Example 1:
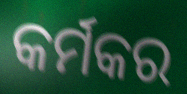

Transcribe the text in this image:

କର୍ମକର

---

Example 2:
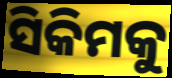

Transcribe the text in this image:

ସିକିମକୁ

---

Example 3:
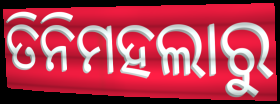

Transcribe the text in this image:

ତିନିମହଲାରୁ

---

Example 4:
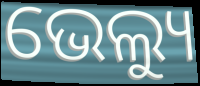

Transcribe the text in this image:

ଭେଲ୍ୟୁ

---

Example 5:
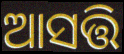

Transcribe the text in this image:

ଆସତ୍ତି